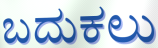
ಬದುಕಲು